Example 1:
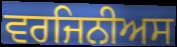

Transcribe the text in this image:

ਵਰਜਿਨੀਅਸ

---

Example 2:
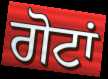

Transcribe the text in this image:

ਗੋਟਾਂ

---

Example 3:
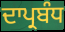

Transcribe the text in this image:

ਦਾਪ੍ਰਬੰਧ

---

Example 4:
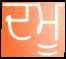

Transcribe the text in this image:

ਦਮੂ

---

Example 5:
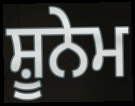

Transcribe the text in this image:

ਸ਼ੂਨੇਮ